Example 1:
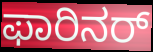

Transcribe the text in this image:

ಫಾರಿನರ್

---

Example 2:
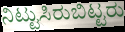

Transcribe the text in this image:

ನಿಟ್ಟುಸಿರುಬಿಟ್ಟರು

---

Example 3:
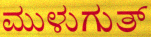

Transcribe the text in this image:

ಮುಳುಗುತ್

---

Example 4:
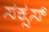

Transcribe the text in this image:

ಸಕ್ಸಸ್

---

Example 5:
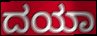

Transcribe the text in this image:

ದಯಾ